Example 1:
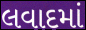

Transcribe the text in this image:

લવાદમાં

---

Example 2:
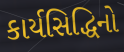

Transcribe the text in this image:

કાર્યસિદ્ધિનો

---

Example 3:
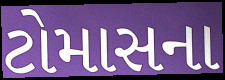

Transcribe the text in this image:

ટોમાસના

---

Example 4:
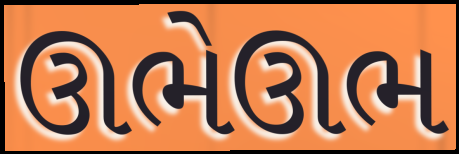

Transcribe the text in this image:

ઊભેઊભ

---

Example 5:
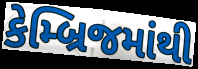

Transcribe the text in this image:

કેમ્બ્રિજમાંથી